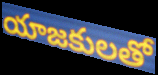
యాజకులతో